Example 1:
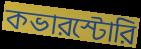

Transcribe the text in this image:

কভারস্টোরি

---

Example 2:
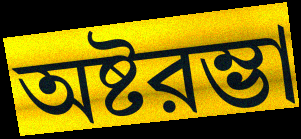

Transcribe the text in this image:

অষ্টরম্ভা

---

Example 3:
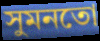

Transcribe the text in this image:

সুমনতো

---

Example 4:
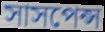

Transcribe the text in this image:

সাসপেন্স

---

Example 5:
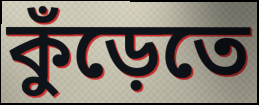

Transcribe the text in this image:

কুঁড়েতে